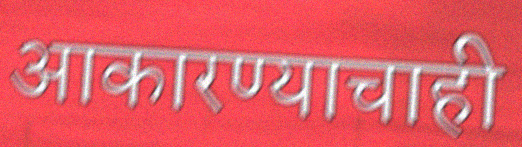
आकारण्याचाही